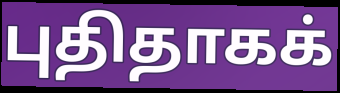
புதிதாகக்